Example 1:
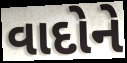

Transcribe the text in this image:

વાદોને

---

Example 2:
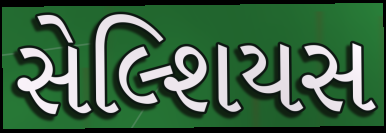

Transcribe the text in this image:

સેલ્શિયસ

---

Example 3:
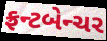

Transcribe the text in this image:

ફ્રન્ટબેન્ચર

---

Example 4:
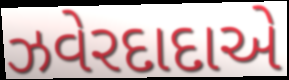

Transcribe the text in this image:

ઝવેરદાદાએ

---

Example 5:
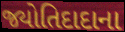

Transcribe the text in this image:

જ્યોતિદાદાના